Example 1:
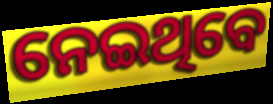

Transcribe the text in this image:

ନେଇଥିବେ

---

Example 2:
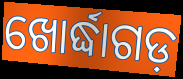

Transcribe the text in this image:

ଖୋର୍ଦ୍ଧାଗଡ଼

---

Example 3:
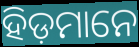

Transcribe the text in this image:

ହିଡ଼ମାନେ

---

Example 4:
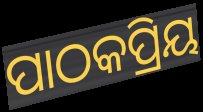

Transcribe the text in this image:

ପାଠକପ୍ରିୟ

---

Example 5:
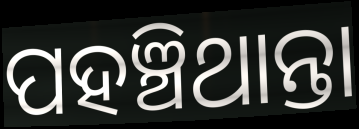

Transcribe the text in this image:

ପହଞ୍ଚିଥାନ୍ତା